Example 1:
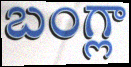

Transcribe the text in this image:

బంగ్లా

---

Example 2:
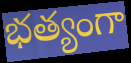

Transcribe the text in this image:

భత్యంగా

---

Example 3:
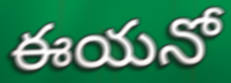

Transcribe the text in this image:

ఈయనో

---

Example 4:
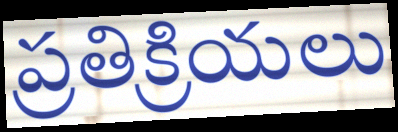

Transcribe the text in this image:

ప్రతిక్రియలు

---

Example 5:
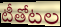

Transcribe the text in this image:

టీతోటల